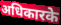
अधिकारके